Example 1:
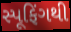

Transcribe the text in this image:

સ્પૂફિંગથી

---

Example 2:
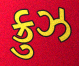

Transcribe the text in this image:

ક્રુઝ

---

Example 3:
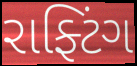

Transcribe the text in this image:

રાફ્ટિંગ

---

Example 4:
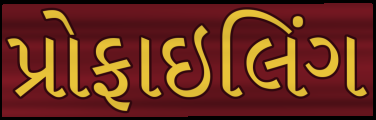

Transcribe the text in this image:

પ્રોફાઇલિંગ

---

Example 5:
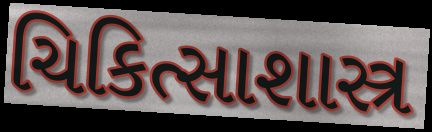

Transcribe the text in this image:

ચિકિત્સાશાસ્ત્ર